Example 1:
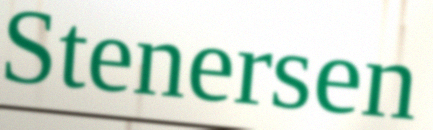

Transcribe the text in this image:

Stenersen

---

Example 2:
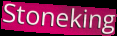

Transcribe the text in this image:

Stoneking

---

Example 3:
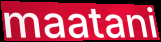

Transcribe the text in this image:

maatani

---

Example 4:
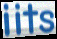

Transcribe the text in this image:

iits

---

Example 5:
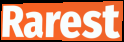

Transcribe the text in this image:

Rarest